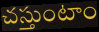
చస్తుంటాం